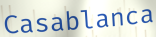
Casablanca